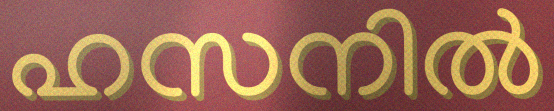
ഹസനിൽ